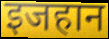
इजहान